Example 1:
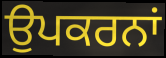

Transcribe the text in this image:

ਉਪਕਰਨਾਂ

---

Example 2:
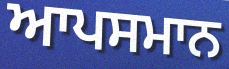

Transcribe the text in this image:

ਆਪਸਮਾਨ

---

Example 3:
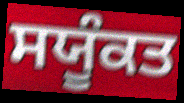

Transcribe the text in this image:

ਸਯੂੰਕਤ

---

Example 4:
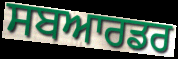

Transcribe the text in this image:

ਸਬਆਰਡਰ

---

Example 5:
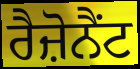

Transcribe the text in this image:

ਰੈਜ਼ੋਨੈਂਟ